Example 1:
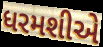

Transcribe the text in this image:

ધરમશીએ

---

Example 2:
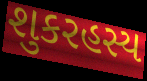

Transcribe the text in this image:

શુકરહસ્ય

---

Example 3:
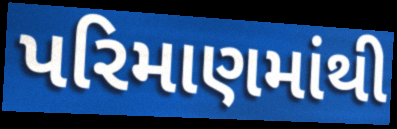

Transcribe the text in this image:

પરિમાણમાંથી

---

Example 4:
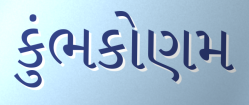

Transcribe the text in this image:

કુંભકોણમ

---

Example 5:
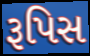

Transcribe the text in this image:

રૂપિસ